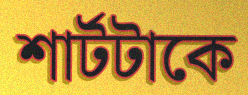
শার্টটাকে